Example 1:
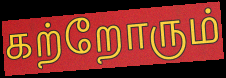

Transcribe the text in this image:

கற்றோரும்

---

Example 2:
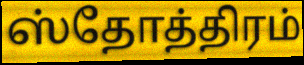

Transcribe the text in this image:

ஸ்தோத்திரம்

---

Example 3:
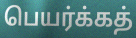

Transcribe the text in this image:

பெயர்க்கத்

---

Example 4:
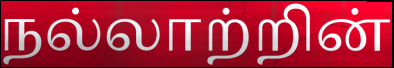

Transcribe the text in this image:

நல்லாற்றின்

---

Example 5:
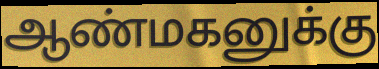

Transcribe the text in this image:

ஆண்மகனுக்கு